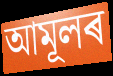
আমূলৰ